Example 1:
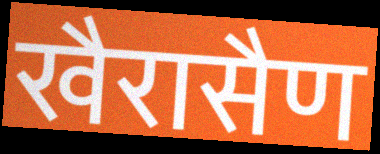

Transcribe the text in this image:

खैरासैण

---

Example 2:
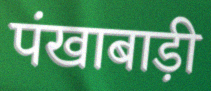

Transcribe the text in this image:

पंखाबाड़ी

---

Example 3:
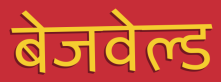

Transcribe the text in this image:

बेजवेल्ड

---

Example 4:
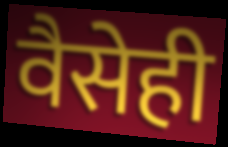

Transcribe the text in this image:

वैसेही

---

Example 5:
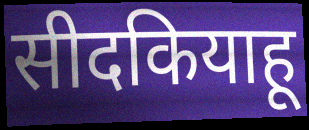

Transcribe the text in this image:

सीदकियाहू